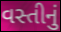
વસ્તીનું